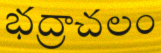
భద్రాచలం